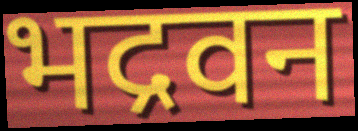
भद्रवन